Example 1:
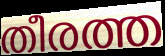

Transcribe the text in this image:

തീരത്ത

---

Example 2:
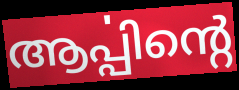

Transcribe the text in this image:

ആൎപ്പിന്റെ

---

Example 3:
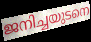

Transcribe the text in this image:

ജനിച്ചയുടനെ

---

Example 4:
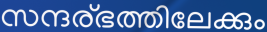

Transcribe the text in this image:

സന്ദര്ഭത്തിലേക്കും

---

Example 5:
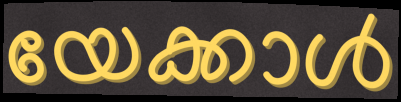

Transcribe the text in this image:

യേക്കാൾ